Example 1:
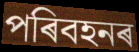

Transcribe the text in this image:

পৰিবহনৰ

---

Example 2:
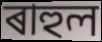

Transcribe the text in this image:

ৰাহুল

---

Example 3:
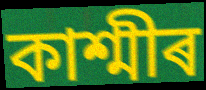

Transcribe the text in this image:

কাশ্মীৰ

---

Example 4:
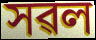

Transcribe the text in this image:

সৱল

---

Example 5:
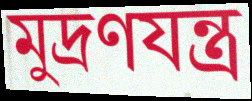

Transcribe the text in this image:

মুদ্ৰণযন্ত্ৰ